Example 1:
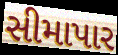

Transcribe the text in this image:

સીમાપાર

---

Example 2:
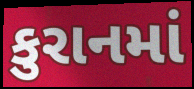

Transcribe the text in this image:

કુરાનમાં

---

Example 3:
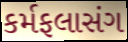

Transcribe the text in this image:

કર્મફલાસંગ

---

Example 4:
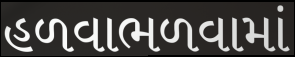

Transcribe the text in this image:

હળવાભળવામાં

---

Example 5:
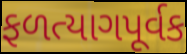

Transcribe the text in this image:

ફળત્યાગપૂર્વક